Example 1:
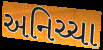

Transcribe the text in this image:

અનિચ્ચા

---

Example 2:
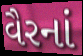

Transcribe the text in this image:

વૈરનાં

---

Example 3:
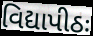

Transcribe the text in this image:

વિદ્યાપીઠઃ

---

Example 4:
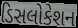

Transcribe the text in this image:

ડિસલોકેશન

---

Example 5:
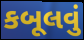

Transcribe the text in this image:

કબૂલવું